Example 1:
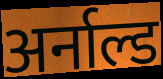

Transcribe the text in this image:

अर्नाल्ड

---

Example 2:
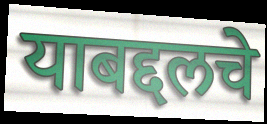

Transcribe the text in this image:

याबद्दलचे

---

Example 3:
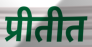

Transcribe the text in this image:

प्रीतीत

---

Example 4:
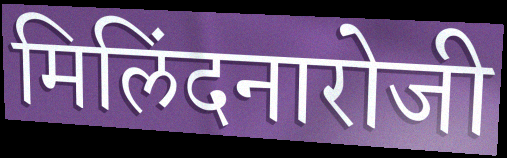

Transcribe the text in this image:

मिलिंदनारोजी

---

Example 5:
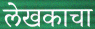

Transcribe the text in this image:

लेखकाचा